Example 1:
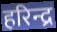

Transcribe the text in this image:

हरिन्द्र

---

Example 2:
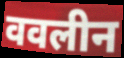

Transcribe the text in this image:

ववलीन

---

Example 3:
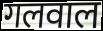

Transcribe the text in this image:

गलवाल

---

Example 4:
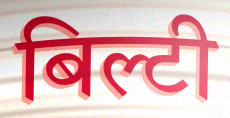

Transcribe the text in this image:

बिल्टी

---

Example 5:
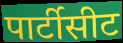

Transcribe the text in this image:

पार्टीसीट